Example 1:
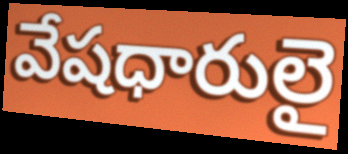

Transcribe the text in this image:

వేషధారులై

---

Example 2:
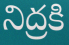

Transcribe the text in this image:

నిద్రకి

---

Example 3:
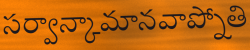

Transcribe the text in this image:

సర్వాన్కామానవాప్నోతి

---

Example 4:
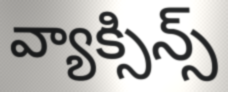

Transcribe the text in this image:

వ్యాక్సిన్స్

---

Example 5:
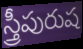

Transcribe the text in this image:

స్త్రీపురుష